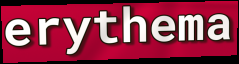
erythema